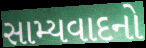
સામ્યવાદનો